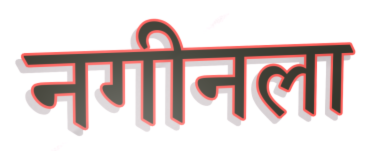
नगीनला